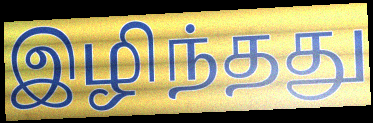
இழிந்தது